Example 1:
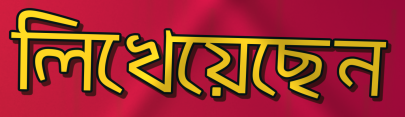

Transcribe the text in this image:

লিখেয়েছেন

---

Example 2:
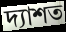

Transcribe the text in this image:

দ্যাশত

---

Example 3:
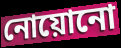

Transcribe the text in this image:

নোয়োনো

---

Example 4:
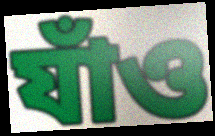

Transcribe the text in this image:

যাঁও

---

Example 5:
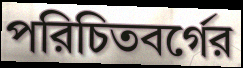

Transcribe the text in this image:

পরিচিতবর্গের